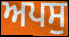
ਅਪਸੁ